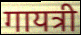
गायत्री